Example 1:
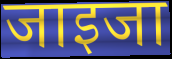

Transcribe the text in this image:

जाइजा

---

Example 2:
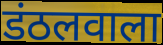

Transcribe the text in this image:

डंठलवाला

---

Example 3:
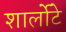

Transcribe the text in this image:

शार्लोटे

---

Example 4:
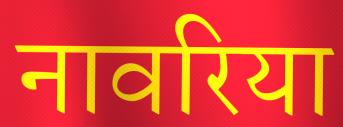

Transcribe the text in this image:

नावरिया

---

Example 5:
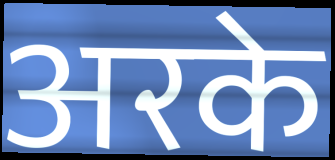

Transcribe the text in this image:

अरके